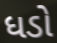
ધડો